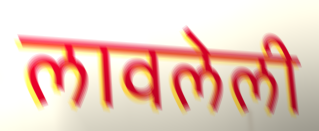
लावलेली